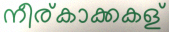
നീര്കാക്കകള്